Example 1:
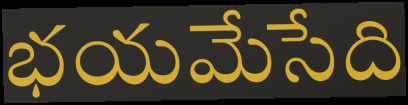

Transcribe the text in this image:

భయమేసేది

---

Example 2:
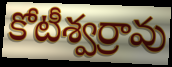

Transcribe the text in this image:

కోటీశ్వర్రావు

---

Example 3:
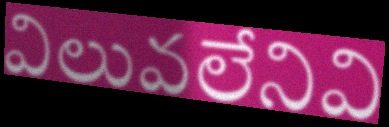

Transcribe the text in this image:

విలువలేనివి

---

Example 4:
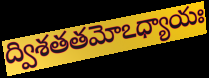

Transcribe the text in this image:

ద్విశతతమోఽధ్యాయః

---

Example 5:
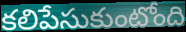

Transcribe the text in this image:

కలిపేసుకుంటోంది